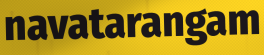
navatarangam